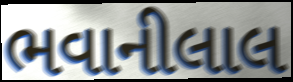
ભવાનીલાલ